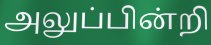
அலுப்பின்றி